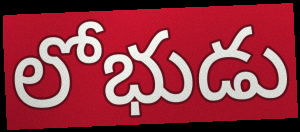
లోభుడు